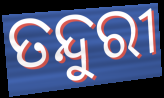
ତନ୍ଦୁରୀ